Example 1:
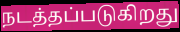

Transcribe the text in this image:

நடத்தப்படுகிறது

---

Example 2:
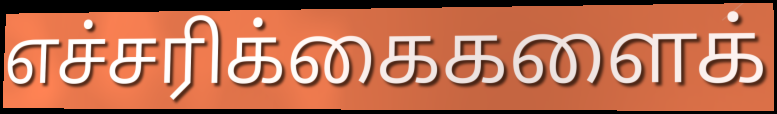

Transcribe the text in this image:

எச்சரிக்கைகளைக்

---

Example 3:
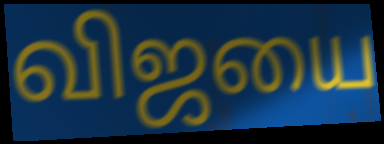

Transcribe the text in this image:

விஜயை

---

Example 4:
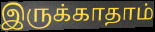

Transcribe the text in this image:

இருக்காதாம்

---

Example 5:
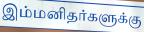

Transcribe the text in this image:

இம்மனிதர்களுக்கு